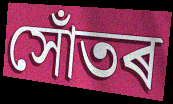
সোঁতৰ